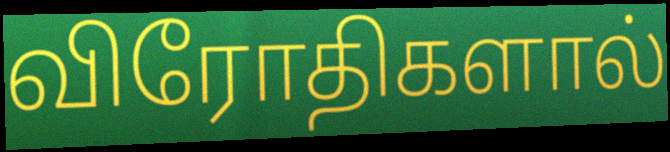
விரோதிகளால்